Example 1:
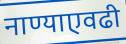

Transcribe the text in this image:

नाण्याएवढी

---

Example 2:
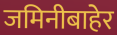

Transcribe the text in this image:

जमिनीबाहेर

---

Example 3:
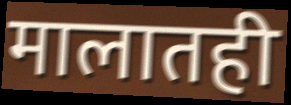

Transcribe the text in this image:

मालातही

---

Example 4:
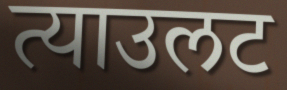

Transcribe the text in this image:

त्याउलट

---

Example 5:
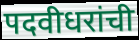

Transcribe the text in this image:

पदवीधरांची